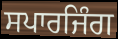
ਸਪਾਰਜਿੰਗ